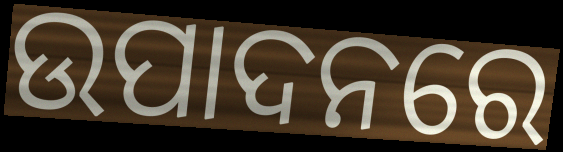
ଉପାଦନରେ